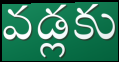
వడ్లకు